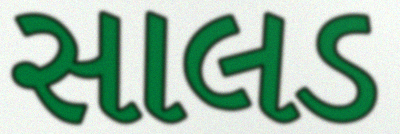
સાલડ